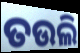
ତଉଲି